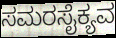
ಸಮರಸೈಕ್ಯವ